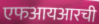
एफआयआरची